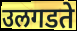
उलगडते